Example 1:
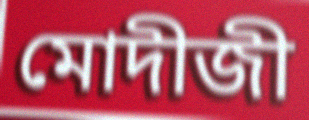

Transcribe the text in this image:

মোদীজী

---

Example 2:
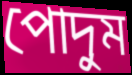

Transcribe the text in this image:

পোদুম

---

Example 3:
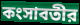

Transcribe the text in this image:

কংসাবতীর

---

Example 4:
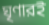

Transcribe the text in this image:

ঘৃণারই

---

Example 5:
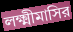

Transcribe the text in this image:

লক্ষ্মীমাসির